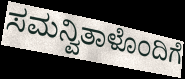
ಸಮನ್ವಿತಾಳೊಂದಿಗೆ